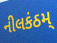
નીલકંઠમ્